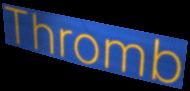
Thromb